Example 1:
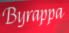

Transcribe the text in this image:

Byrappa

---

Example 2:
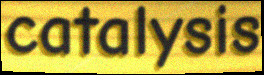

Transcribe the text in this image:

catalysis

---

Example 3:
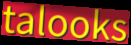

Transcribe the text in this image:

talooks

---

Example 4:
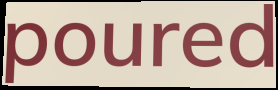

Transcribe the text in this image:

poured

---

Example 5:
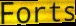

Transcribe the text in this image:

Forts